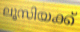
ലൂസിയക്ക്